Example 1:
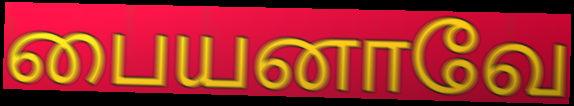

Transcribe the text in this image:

பையனாவே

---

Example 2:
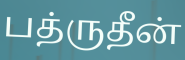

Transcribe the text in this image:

பத்ருதீன்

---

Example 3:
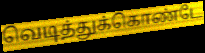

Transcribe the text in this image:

வெடித்துக்கொண்டே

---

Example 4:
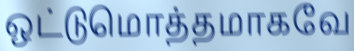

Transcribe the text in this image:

ஒட்டுமொத்தமாகவே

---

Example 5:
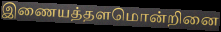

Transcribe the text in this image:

இணையத்தளமொன்றினை